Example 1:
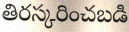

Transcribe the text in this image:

తిరస్కరించబడి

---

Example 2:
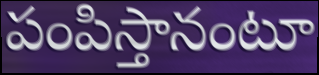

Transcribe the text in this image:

పంపిస్తానంటూ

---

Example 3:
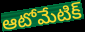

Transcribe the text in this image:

ఆటోమేటిక్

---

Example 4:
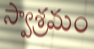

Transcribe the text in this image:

స్వాశ్రమం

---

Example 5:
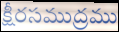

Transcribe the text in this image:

క్షీరసముద్రము